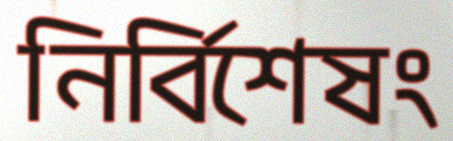
নির্বিশেষং